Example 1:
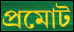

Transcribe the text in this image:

প্রমোট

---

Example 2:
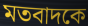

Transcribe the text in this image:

মতবাদকে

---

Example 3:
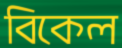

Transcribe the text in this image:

বিকেল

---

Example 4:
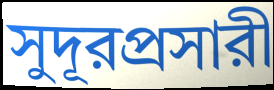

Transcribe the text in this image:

সুদূরপ্রসারী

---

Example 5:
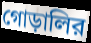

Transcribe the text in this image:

গোড়ালির